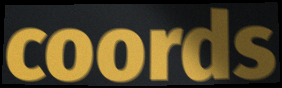
coords